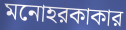
মনোহরকাকার